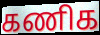
கணிக